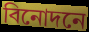
বিনোদনে